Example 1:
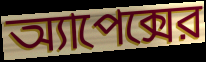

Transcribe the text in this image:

অ্যাপেক্সের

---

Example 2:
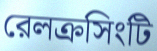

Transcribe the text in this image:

রেলক্রসিংটি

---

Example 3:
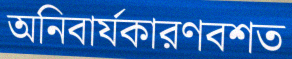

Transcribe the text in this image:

অনিবার্যকারণবশত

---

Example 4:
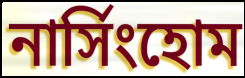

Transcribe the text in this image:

নার্সিংহোম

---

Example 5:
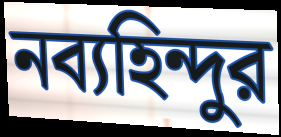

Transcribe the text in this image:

নব্যহিন্দুর